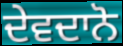
ਦੇਵਦਾਨੋ